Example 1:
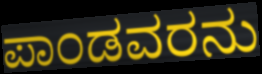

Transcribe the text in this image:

ಪಾಂಡವರನು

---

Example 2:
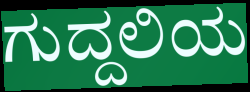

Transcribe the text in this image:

ಗುದ್ದಲಿಯ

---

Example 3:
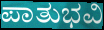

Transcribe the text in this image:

ಪಾತುಭವಿ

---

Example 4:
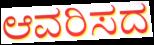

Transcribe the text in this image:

ಆವರಿಸದ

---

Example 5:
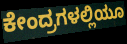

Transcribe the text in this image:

ಕೇಂದ್ರಗಳಲ್ಲಿಯೂ